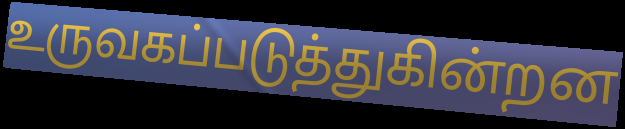
உருவகப்படுத்துகின்றன